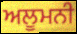
ਅਲੂਮਨੀ